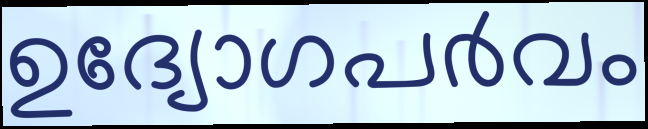
ഉദ്യോഗപർവം